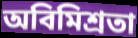
অবিমিশ্রতা